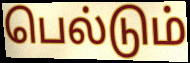
பெல்டும்